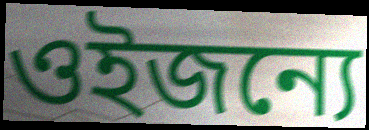
ওইজন্যে